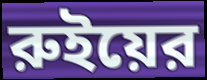
রুইয়ের